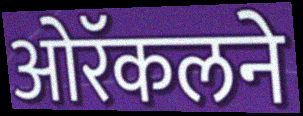
ओरॅकलने